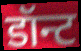
डॉन्ट